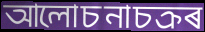
আলোচনাচক্ৰৰ